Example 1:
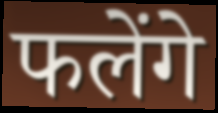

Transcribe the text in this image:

फलेंगे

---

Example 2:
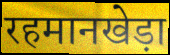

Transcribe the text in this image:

रहमानखेड़ा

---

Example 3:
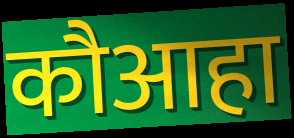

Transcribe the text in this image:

कौआहा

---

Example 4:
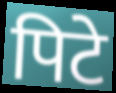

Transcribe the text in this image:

पिटे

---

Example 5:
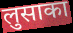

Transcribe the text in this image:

लुसाका